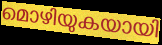
മൊഴിയുകയായി